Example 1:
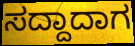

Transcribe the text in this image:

ಸದ್ದಾದಾಗ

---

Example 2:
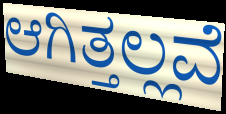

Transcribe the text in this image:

ಆಗಿತ್ತಲ್ಲವೆ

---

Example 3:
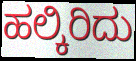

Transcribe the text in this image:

ಹಲ್ಕಿರಿದು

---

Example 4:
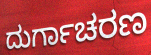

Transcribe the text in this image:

ದುರ್ಗಾಚರಣ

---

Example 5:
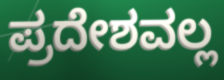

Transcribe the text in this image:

ಪ್ರದೇಶವಲ್ಲ